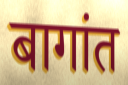
बागांत